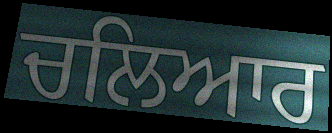
ਚਲਿਆਰ